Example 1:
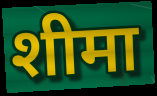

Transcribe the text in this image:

शीमा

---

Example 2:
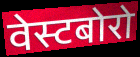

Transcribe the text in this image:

वेस्टबोरो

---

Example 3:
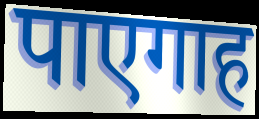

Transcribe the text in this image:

पाएगाह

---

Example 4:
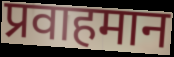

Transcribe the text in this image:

प्रवाहमान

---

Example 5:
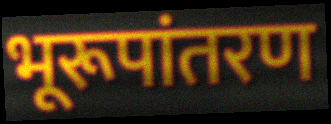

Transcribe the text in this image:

भूरूपांतरण